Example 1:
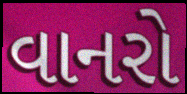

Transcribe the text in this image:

વાનરો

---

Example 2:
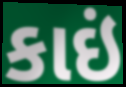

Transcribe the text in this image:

કાઇં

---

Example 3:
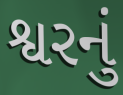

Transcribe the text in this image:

શ્વરનું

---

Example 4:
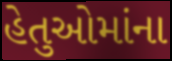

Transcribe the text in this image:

હેતુઓમાંના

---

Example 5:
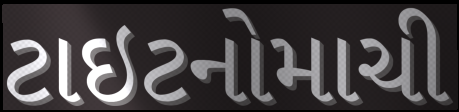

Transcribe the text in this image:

ટાઇટનોમાચી